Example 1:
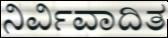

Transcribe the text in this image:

ನಿರ್ವಿವಾದಿತ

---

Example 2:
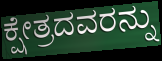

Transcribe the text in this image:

ಕ್ಷೇತ್ರದವರನ್ನು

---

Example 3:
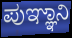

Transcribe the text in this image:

ಪುಞ್ಞಾನಿ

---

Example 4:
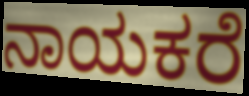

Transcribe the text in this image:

ನಾಯಕರೆ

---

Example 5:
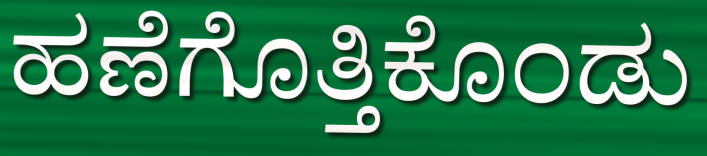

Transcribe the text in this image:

ಹಣೆಗೊತ್ತಿಕೊಂಡು